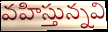
వహిస్తున్నవి